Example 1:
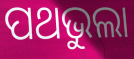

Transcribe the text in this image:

ପଥଭୁଲା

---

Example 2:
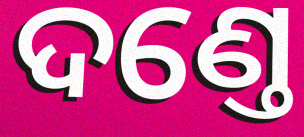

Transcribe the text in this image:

ଦଣ୍ତେ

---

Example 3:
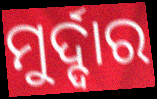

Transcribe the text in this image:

ମୁର୍ଦ୍ଦାର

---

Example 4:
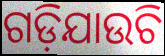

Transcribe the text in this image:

ଗଡ଼ିଯାଉଚି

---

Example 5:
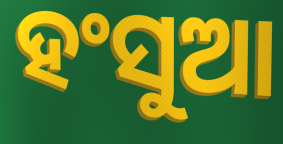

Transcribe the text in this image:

ହଂସୁଆ